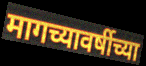
मागच्यावर्षीच्या